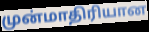
முன்மாதிரியான